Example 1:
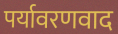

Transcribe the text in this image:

पर्यावरणवाद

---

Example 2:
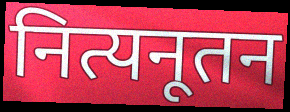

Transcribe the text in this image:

नित्यनूतन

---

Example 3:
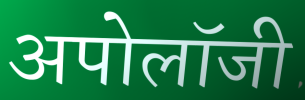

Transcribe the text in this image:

अपोलॉजी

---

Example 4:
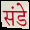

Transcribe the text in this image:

संडे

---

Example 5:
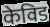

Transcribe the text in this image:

केविड